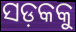
ସଡ଼କକୁ